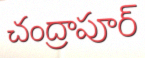
చంద్రాపూర్